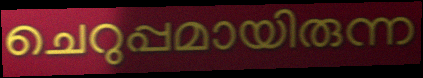
ചെറുപ്പമായിരുന്ന